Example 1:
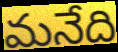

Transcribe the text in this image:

మనేది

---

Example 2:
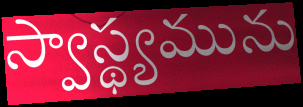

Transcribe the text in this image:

స్వాస్థ్యమును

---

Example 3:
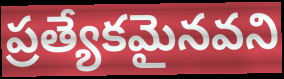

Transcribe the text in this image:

ప్రత్యేకమైనవని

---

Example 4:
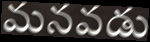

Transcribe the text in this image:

మనవడు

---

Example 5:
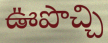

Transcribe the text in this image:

ఊపొచ్చి